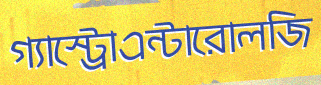
গ্যাস্ট্রোএন্টারোলজি